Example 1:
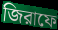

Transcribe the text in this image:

জিরাফে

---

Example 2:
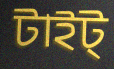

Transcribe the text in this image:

টাইট্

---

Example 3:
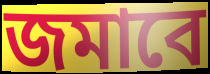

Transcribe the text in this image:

জমাবে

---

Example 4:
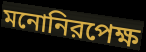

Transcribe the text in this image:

মনোনিরপেক্ষ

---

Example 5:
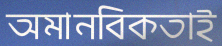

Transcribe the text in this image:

অমানবিকতাই